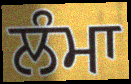
ਲੰਮਾ